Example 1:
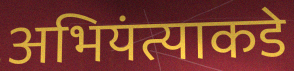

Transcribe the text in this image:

अभियंत्याकडे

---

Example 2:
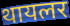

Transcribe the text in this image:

थायलर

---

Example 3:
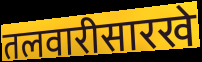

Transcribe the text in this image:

तलवारीसारखे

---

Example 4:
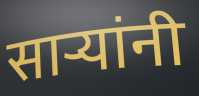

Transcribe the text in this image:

साऱ्यांनी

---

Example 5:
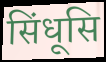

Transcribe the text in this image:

सिंधूसि